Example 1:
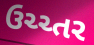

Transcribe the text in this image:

ઉચ્ચ્તર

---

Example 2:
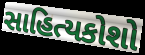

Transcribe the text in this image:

સાહિત્યકોશો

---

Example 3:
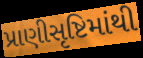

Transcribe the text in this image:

પ્રાણીસૃષ્ટિમાંથી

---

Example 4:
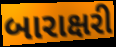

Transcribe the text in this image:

બારાક્ષરી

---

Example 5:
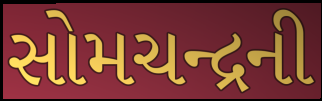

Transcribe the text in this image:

સોમચન્દ્રની